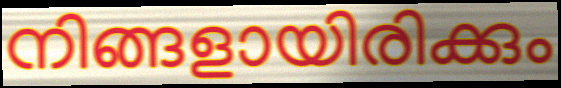
നിങ്ങളായിരിക്കും